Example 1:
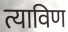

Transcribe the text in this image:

त्याविण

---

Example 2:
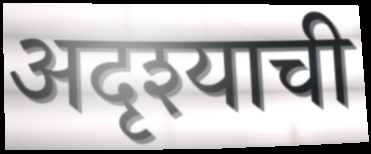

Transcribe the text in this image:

अदृश्याची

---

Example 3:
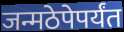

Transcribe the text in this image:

जन्मठेपेपर्यंत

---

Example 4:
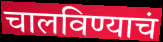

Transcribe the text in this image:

चालविण्याचं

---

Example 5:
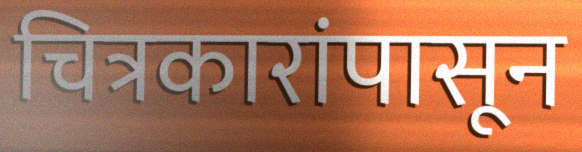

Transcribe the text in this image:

चित्रकारांपासून